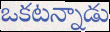
ఒకటన్నాడు